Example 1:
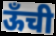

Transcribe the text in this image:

ऊँची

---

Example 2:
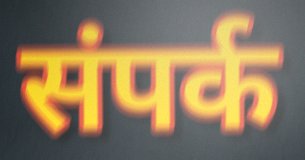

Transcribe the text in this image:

संपर्क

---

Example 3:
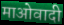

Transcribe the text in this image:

माओवादी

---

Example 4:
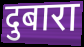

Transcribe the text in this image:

दुबारा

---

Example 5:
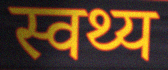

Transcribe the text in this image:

स्वथ्य